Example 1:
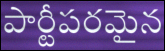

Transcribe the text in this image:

పార్టీపరమైన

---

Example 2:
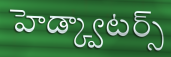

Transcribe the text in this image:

హెడ్క్వాటర్స్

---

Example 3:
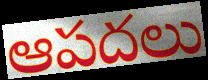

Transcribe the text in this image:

ఆపదలు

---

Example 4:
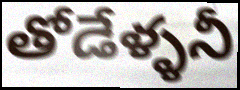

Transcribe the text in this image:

తోడేళ్ళనీ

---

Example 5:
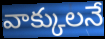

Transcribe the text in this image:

వాక్కులనే